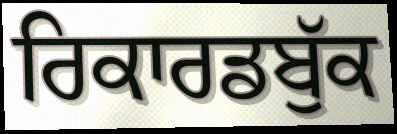
ਰਿਕਾਰਡਬੁੱਕ